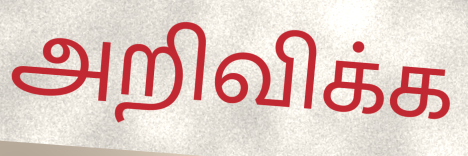
அறிவிக்க